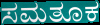
ಸಮತೂಕ